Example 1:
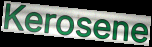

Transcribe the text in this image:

Kerosene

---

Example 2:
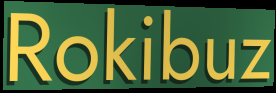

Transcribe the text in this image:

Rokibuz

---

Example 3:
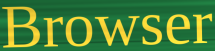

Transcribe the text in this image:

Browser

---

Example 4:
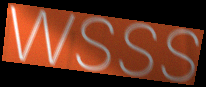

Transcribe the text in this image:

WSSS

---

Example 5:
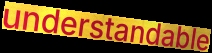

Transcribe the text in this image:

understandable